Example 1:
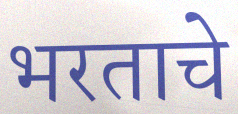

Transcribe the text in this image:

भरताचे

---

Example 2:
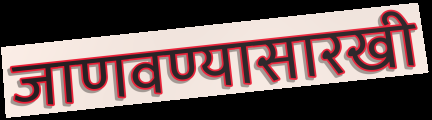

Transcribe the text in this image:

जाणवण्यासारखी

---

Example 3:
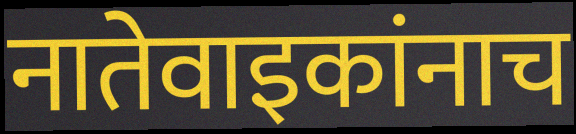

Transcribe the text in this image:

नातेवाइकांनाच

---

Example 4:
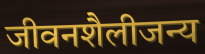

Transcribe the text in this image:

जीवनशैलीजन्य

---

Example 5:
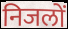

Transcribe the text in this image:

निजलों